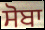
ਸੋਬਾ